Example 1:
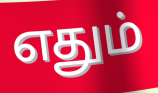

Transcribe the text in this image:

எதும்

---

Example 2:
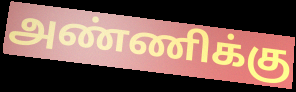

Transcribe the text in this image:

அண்ணிக்கு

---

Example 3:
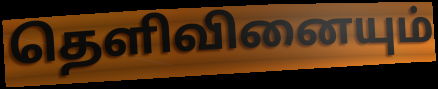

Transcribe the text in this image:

தெளிவினையும்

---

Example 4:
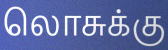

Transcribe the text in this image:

லொசுக்கு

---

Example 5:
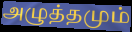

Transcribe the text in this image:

அழுத்தமும்